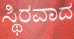
ಸ್ಥಿರವಾದ